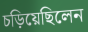
চড়িয়েছিলেন